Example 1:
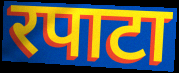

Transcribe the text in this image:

रपाटा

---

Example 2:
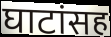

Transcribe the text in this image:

घाटांसह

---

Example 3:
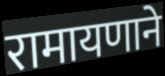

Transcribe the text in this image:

रामायणाने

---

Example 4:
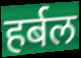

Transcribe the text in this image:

हर्बल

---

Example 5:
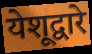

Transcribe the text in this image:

येशूद्वारे